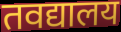
तवद्यालय